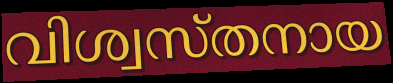
വിശ്വസ്തനായ